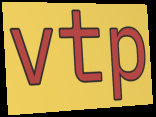
vtp